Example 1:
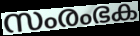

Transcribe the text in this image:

സംരംഭക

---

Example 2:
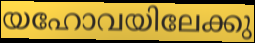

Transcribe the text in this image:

യഹോവയിലേക്കു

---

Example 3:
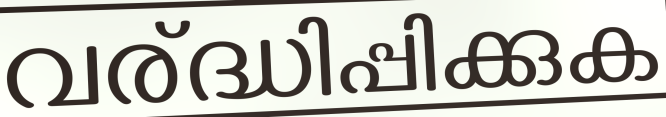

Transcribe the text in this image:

വര്ദ്ധിപ്പിക്കുക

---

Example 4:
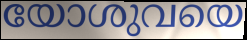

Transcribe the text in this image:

യോശുവയെ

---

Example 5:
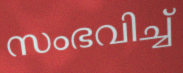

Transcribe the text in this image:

സംഭവിച്ച്